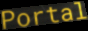
Portal